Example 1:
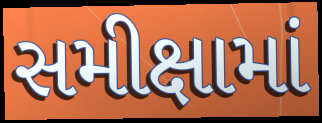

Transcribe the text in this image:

સમીક્ષામાં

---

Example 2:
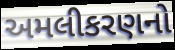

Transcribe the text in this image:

અમલીકરણનો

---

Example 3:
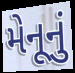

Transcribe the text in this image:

મેનૂનું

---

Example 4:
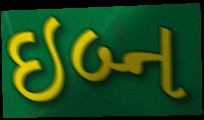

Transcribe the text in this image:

ઇબ્ન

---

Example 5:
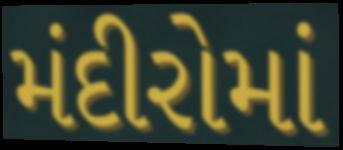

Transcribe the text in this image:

મંદીરોમાં